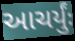
આચર્યુંઃ